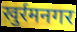
खुर्रमनगर